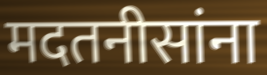
मदतनीसांना